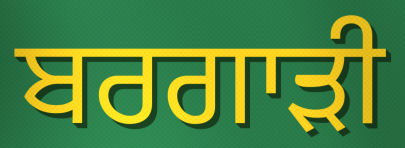
ਬਰਗਾੜੀ